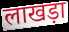
लाखड़ा